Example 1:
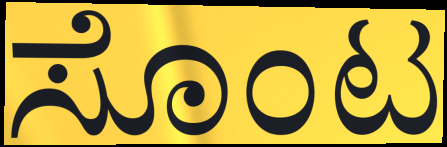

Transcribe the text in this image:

ಸೊಂಟ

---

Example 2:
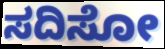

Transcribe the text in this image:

ಸದಿಸೋ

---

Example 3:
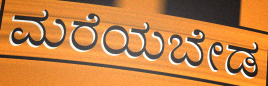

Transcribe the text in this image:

ಮರೆಯಬೇಡ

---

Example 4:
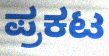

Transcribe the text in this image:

ಪ್ರಕಟ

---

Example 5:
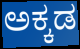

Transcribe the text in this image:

ಅಕ್ಕಡ